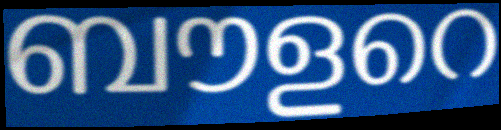
ബൗളറെ